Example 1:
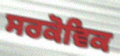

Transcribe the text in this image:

ਸਰਕੋਵਿਕ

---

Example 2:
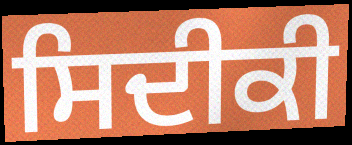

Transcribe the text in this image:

ਸਿਦੀਕੀ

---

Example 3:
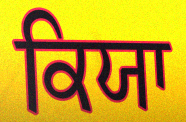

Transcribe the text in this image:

ਕਿਯਾ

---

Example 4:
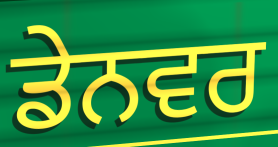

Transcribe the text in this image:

ਡੇਨਵਰ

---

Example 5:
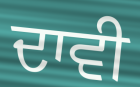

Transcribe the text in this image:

ਦਾਵੀ